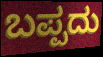
ಬಪ್ಪದು